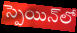
స్పెయిన్‌లో